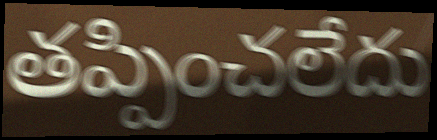
తప్పించలేదు